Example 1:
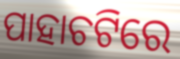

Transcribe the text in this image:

ପାହାଚଟିରେ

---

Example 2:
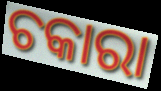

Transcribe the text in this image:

ଚକାରା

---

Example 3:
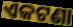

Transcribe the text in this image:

ଏକଟଣା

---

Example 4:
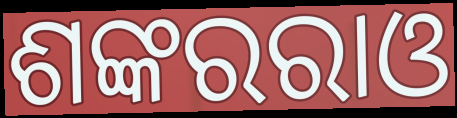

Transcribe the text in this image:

ଶଙ୍କରରାଓ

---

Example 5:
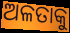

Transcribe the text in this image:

ଅଳତାକୁ